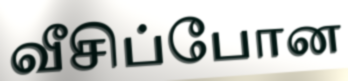
வீசிப்போன